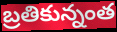
బ్రతికున్నంత